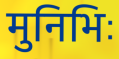
मुनिभिः